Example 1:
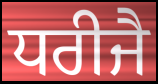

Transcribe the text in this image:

ਧਰੀਜੈ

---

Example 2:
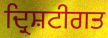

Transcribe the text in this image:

ਦ੍ਰਿਸ਼ਟੀਗਤ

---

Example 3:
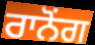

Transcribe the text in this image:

ਰਾਨੋਂਗ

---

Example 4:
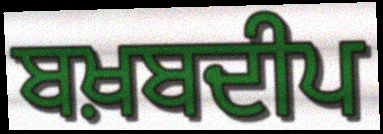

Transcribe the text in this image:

ਬਖ਼ਬਦੀਪ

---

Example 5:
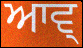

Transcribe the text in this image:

ਆਵ੍